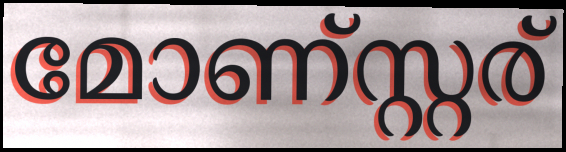
മോണ്സ്റ്റര്